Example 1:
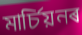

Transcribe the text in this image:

মাৰ্চিয়নৰ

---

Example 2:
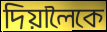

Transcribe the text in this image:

দিয়ালৈকে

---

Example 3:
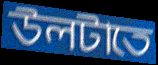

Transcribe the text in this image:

উলটাতে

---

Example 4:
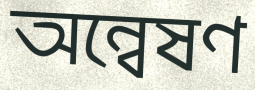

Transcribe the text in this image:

অন্বেষণ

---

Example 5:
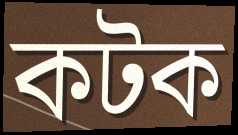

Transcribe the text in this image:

কটক